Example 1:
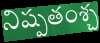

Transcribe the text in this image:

నిష్పతంశ్చ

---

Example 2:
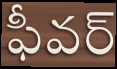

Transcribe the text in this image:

ఫీవర్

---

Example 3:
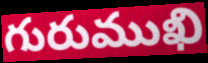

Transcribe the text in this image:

గురుముఖి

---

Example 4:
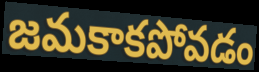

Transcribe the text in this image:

జమకాకపోవడం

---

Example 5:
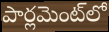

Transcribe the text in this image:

పార్లమెంట్‌లో